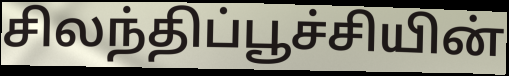
சிலந்திப்பூச்சியின்